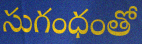
సుగంధంతో